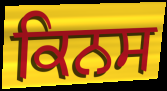
ਕਿਨਸ